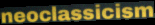
neoclassicism